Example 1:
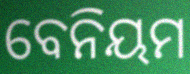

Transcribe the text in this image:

ବେନିୟମ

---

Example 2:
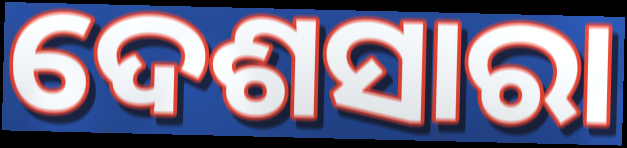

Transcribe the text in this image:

ଦେଶସାରା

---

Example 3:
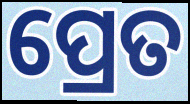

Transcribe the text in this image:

ପ୍ରେତ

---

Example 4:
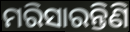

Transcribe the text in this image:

ମରିସାରନ୍ତିଣି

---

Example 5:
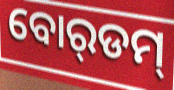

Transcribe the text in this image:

ବୋର୍‌ଡମ୍